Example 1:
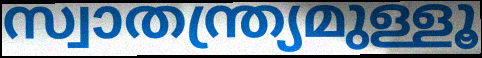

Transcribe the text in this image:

സ്വാതന്ത്ര്യമുള്ളൂ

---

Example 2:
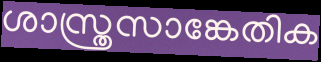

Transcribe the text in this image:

ശാസ്ത്രസാങ്കേതിക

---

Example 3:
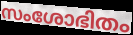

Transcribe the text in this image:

സംശോഭിതം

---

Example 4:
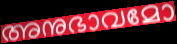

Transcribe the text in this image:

അനുഭാവമോ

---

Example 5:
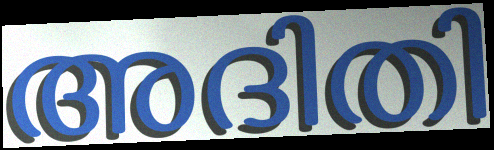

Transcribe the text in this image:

അദിതി